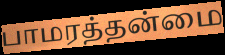
பாமரத்தன்மை